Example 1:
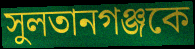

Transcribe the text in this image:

সুলতানগঞ্জকে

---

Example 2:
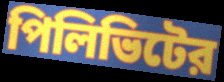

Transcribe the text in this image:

পিলিভিটের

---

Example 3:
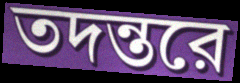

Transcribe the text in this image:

তদন্তরে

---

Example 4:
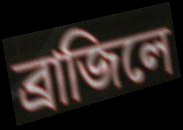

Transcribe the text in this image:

ব্রাজিলে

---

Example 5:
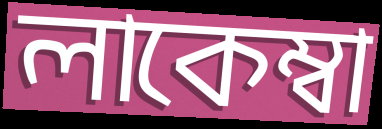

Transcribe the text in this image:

লাকেম্বা